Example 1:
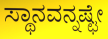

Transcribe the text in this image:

ಸ್ಥಾನವನ್ನಷ್ಟೇ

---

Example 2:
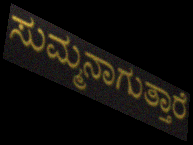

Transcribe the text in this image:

ಸುಮ್ಮನಾಗುತ್ತಾರೆ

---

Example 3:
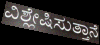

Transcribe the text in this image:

ವಿಶ್ಲೇಷಿಸುತ್ತಾನೆ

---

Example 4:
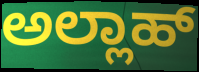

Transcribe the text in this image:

ಅಲ್ಲಾಹ್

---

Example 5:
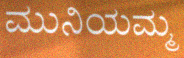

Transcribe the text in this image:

ಮುನಿಯಮ್ಮ